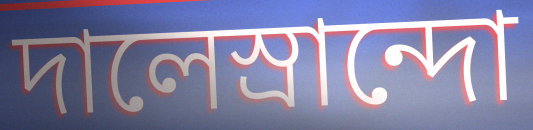
দালেস্রান্দো